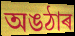
অঙঠাৰ